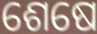
ଶେଷେ